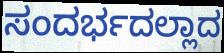
ಸಂದರ್ಭದಲ್ಲಾದ